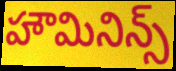
హౌమినిన్స్